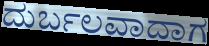
ದುರ್ಬಲವಾದಾಗ